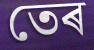
তেৰ